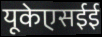
यूकेएसईई